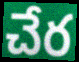
చేర